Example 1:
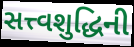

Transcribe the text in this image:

સત્ત્વશુદ્ધિની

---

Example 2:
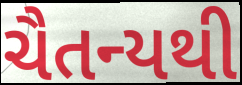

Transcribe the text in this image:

ચૈતન્યથી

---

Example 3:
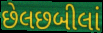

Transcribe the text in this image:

છેલછબીલાં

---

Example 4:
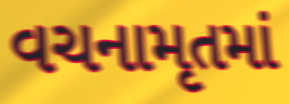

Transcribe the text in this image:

વચનામૃતમાં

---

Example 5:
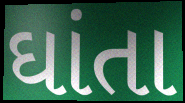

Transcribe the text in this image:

ઘાંતા